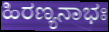
ಹಿರಣ್ಯನಾಭಃ